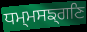
ਧਮ੍ਮਸਙ੍ਗਣਿ